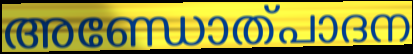
അണ്ഡോത്പാദന